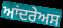
ਆਂਦਰੇਅਸ